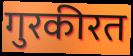
गुरकीरत